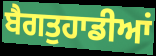
ਬੈਗਤੁਹਾਡੀਆਂ